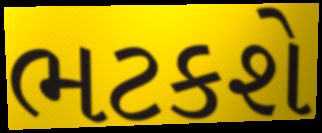
ભટકશે